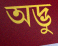
অদ্ভু